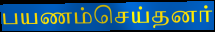
பயணம்செய்தனர்